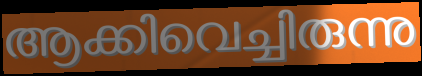
ആക്കിവെച്ചിരുന്നു